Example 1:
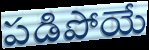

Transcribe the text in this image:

పడిపోయే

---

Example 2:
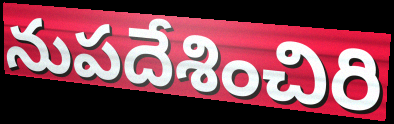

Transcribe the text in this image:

నుపదేశించిరి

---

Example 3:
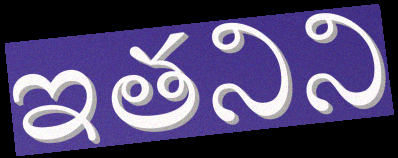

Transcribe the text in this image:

ఇతనిని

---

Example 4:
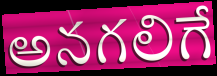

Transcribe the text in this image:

అనగలిగే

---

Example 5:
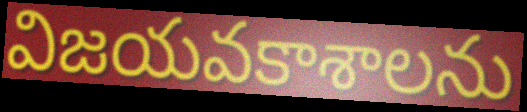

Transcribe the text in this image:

విజయవకాశాలను